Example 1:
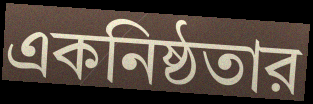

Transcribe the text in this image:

একনিষ্ঠতার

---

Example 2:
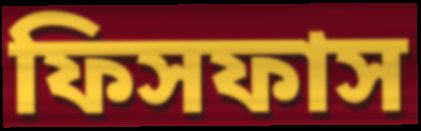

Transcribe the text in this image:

ফিসফাস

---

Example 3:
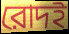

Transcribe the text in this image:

রোদই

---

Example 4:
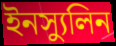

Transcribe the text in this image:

ইনস্যুলিন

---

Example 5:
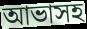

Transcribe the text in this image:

আভাসহ